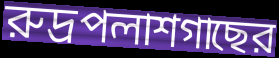
রুদ্রপলাশগাছের